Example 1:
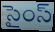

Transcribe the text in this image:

సైంస్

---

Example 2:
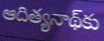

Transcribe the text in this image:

ఆదిత్యనాథ్‌కు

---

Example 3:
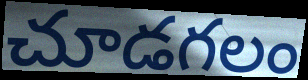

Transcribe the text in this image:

చూడగలం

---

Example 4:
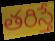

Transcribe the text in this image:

తరిస్తే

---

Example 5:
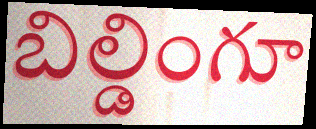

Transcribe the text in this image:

బిల్డింగూ